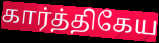
கார்த்திகேய